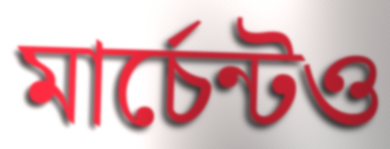
মার্চেন্টও